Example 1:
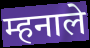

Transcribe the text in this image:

म्हनाले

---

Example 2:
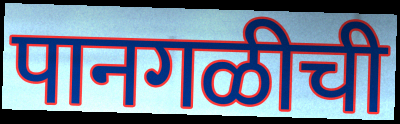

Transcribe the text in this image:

पानगळीची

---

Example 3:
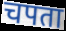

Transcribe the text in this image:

चपता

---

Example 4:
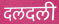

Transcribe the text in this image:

दलदली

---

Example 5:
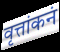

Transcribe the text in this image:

वृत्तांकनं